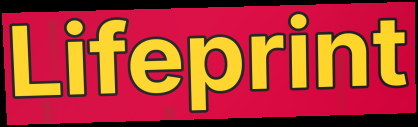
Lifeprint